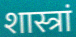
शास्त्रां